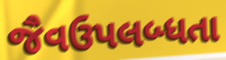
જૈવઉપલબ્ધતા